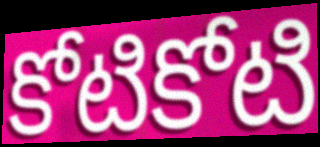
కోటికోటి